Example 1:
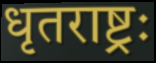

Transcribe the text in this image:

धृतराष्ट्रः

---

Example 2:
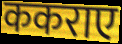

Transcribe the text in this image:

ककराए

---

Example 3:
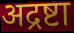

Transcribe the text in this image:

अद्रष्टा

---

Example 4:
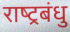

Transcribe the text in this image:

राष्ट्रबंधु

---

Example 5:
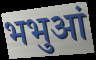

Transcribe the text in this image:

भभुआं